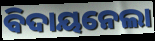
ବିଦାୟନେଲା